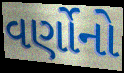
વર્ણોનો